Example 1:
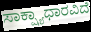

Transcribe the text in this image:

ಸಾಕ್ಷ್ಯಾಧಾರವಿದೆ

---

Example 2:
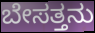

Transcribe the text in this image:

ಬೇಸತ್ತನು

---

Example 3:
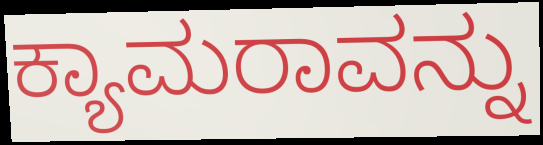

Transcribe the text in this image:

ಕ್ಯಾಮರಾವನ್ನು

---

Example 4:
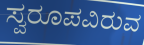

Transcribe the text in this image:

ಸ್ವರೂಪವಿರುವ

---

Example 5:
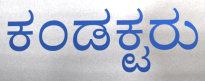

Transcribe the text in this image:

ಕಂಡಕ್ಟರು